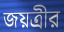
জয়ত্রীর